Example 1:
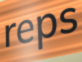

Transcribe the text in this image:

reps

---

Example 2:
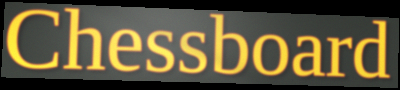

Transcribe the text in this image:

Chessboard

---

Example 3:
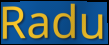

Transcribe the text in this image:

Radu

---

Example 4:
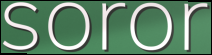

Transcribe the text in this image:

soror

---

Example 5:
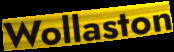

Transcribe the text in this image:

Wollaston